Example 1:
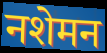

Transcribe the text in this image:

नशेमन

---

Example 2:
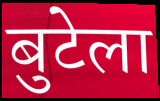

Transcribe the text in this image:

बुटेला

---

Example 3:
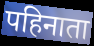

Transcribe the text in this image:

पहिनाता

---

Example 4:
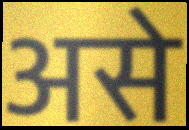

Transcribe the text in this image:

असे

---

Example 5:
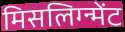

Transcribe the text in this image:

मिसलिग्न्मेंट